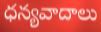
ధన్యవాదాలు